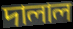
দালাল